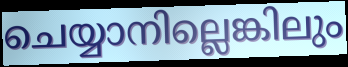
ചെയ്യാനില്ലെങ്കിലും